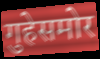
गुहेसमोर